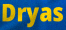
Dryas